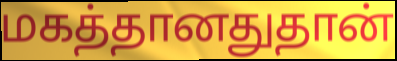
மகத்தானதுதான்